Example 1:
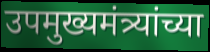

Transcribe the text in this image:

उपमुख्यमंत्र्यांच्या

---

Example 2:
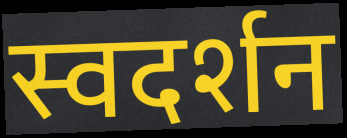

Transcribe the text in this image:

स्वदर्शन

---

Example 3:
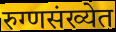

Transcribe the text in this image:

रुग्णसंख्येत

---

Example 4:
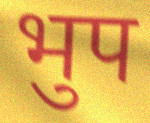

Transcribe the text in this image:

भुप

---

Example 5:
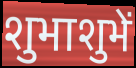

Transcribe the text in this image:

शुभाशुभें